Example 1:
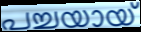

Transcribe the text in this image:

പച്ചയായ്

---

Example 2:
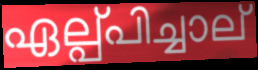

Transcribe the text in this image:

ഏല്പ്പിച്ചാല്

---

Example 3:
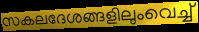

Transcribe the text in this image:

സകലദേശങ്ങളിലുംവെച്ച്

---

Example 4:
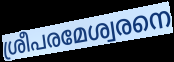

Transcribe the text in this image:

ശ്രീപരമേശ്വരനെ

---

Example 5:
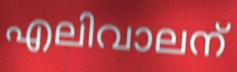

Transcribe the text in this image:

എലിവാലന്